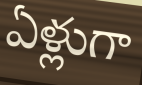
ఏళ్లుగా